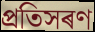
প্ৰতিসৰণ